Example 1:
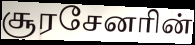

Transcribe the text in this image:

சூரசேனரின்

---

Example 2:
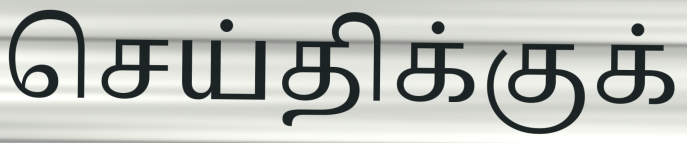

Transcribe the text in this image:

செய்திக்குக்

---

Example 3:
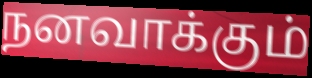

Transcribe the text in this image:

நனவாக்கும்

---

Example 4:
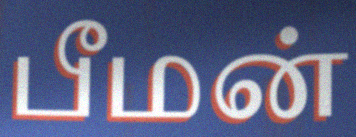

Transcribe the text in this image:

பீமன்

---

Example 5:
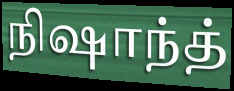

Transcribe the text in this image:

நிஷாந்த்